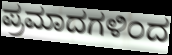
ಪ್ರಮಾದಗಳಿಂದ